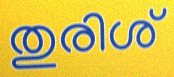
തുരിശ്